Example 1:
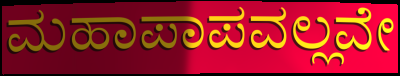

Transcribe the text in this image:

ಮಹಾಪಾಪವಲ್ಲವೇ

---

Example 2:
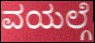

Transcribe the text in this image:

ವಯಲ್ಗೆ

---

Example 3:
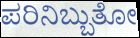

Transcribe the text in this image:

ಪರಿನಿಬ್ಬುತೋ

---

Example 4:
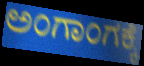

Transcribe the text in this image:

ಅಂಗಾಂಗಕ್ಕೆ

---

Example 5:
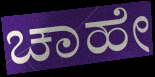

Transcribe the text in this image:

ಚಾಹೇ